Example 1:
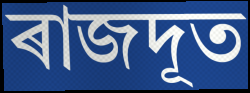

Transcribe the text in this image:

ৰাজদূত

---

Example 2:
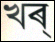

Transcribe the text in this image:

খৰ্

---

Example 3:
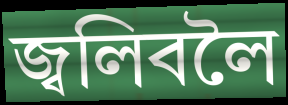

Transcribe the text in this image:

জ্বলিবলৈ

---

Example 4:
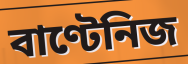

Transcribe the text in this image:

বাণ্টেনিজ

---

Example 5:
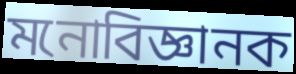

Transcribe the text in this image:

মনোবিজ্ঞানক